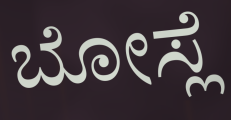
ಬೋಸ್ಲೆ